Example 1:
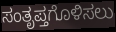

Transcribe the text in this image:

ಸಂತೃಪ್ತಗೊಳಿಸಲು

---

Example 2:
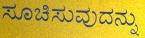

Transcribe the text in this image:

ಸೂಚಿಸುವುದನ್ನು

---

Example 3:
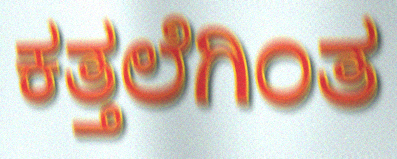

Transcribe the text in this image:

ಕತ್ತಲೆಗಿಂತ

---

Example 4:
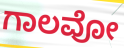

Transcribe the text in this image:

ಗಾಲವೋ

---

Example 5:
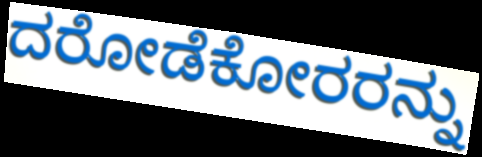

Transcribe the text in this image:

ದರೋಡೆಕೋರರನ್ನು